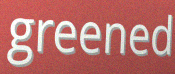
greened